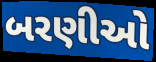
બરણીઓ